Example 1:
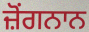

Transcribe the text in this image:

ਜ਼ੋਂਗਨਾਨ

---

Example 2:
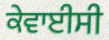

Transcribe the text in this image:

ਕੇਵਾਈਸੀ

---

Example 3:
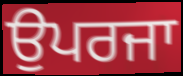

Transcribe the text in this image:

ਉਪਰਜਾ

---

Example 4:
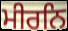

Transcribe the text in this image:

ਮੀਰਨਿ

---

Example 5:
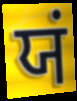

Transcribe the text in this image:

ਯਂ